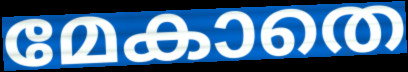
മേകാതെ